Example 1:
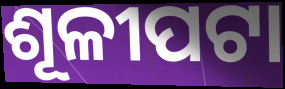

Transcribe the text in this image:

ଶୂଳୀପଟା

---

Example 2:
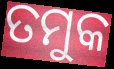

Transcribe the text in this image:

ତମୁକ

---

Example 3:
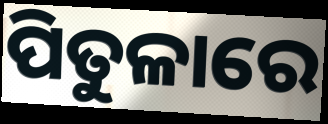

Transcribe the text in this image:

ପିତୁଳାରେ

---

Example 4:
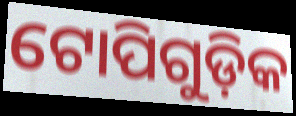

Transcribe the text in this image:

ଟୋପିଗୁଡ଼ିକ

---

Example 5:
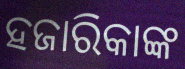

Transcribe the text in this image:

ହଜାରିକାଙ୍କ